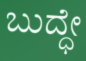
ಬುದ್ಧೇ